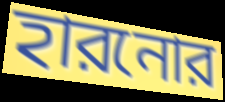
হারনোর